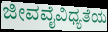
ಜೀವವೈವಿಧ್ಯತೆಯ